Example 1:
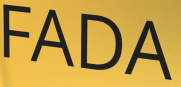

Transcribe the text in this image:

FADA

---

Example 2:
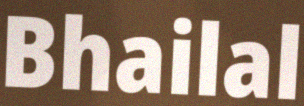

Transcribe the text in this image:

Bhailal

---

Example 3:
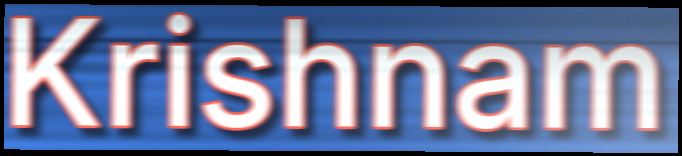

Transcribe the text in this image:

Krishnam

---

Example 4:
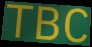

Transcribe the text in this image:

TBC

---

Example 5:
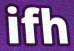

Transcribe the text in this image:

ifh